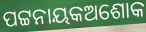
ପଟ୍ଟନାୟକଅଶୋକ